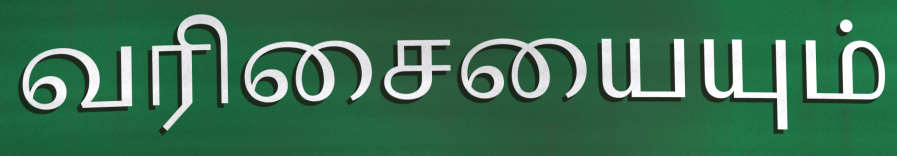
வரிசையையும்